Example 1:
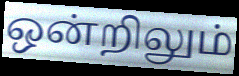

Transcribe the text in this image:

ஒன்றிலும்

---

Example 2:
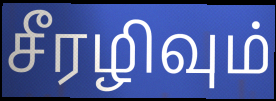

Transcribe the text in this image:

சீரழிவும்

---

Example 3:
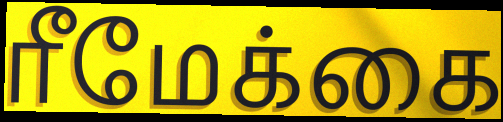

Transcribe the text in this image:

ரீமேக்கை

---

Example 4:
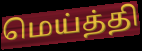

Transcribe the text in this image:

மெய்த்தி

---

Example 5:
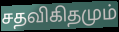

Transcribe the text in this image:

சதவிகிதமும்